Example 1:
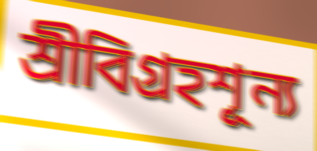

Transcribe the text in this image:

শ্রীবিগ্রহশূন্য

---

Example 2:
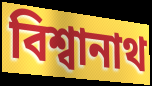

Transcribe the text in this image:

বিশ্বানাথ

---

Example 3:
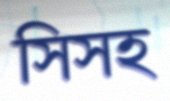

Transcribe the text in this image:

সিসহ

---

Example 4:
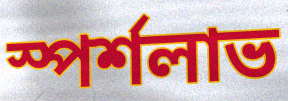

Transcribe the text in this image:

স্পর্শলাভ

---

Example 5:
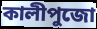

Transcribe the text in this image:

কালীপুজো